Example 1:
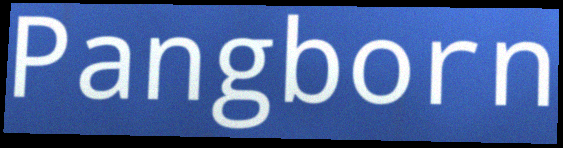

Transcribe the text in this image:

Pangborn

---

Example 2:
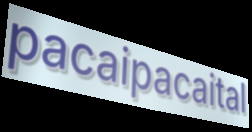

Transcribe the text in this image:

pacaipacaital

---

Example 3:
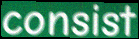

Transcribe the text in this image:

consist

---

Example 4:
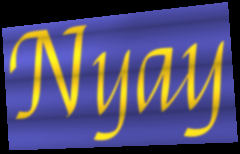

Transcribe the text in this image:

Nyay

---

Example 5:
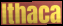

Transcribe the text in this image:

Ithaca